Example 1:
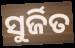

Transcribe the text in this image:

ସୁର୍ଜିତ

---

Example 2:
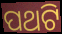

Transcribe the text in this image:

ପଥଟି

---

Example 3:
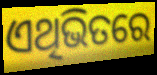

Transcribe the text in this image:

ଏଥିଭିତରେ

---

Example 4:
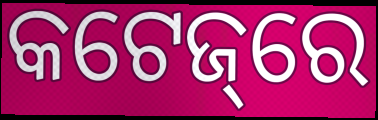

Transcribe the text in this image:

କଟେଜ୍‌ରେ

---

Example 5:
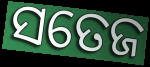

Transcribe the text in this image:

ସତେଜ